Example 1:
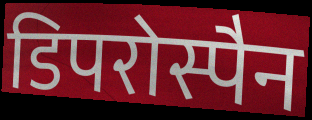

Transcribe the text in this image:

डिपरोस्पैन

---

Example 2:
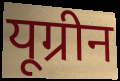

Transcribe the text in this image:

यूग्रीन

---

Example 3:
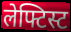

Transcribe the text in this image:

लेफ्टिस्ट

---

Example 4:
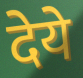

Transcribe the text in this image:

देये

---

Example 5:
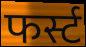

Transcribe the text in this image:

फर्स्ट